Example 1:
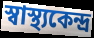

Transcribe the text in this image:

স্বাস্থ্যকেন্দ্র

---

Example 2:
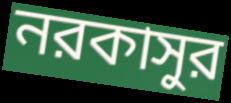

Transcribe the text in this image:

নরকাসুর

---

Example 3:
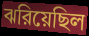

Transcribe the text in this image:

ঝরিয়েছিল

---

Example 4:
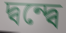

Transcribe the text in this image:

দ্বন্দ্বে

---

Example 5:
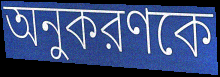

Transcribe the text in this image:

অনুকরণকে